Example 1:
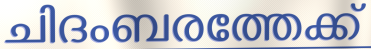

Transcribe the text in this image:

ചിദംബരത്തേക്ക്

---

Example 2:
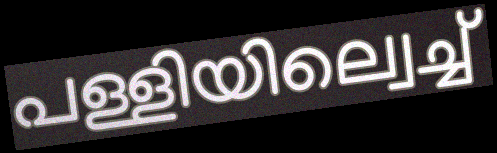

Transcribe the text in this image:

പള്ളിയില്വെച്ച്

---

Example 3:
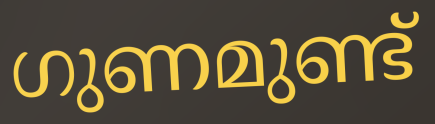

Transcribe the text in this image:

ഗുണമുണ്ട്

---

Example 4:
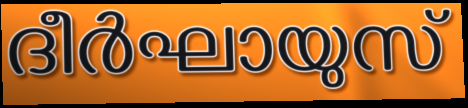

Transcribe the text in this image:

ദീർഘായുസ്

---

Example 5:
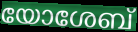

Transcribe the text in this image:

യോശേബ്